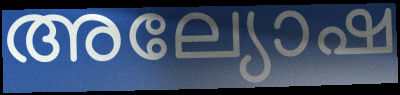
അല്യോഷ